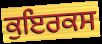
ਕੁਇਰਕਸ